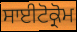
ਸਾਈਟੋਕ੍ਰੋਮ